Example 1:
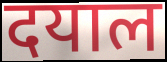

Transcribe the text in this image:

दयाल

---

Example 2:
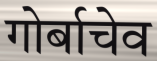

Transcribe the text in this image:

गोर्बाचेव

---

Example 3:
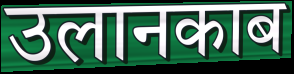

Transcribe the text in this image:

उलानकाब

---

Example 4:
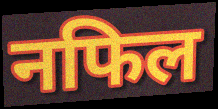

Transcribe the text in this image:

नफिल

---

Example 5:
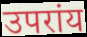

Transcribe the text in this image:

उपरांय